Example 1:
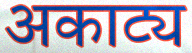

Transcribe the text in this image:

अकाट्य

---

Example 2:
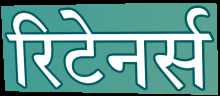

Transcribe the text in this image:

रिटेनर्स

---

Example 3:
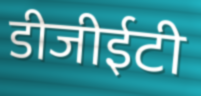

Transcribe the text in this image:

डीजीईटी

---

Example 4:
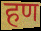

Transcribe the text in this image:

हण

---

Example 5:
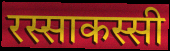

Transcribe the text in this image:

रस्साकस्सी